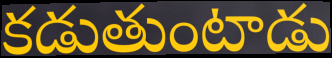
కడుతుంటాడు